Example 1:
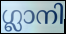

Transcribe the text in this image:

ഗ്ലാനി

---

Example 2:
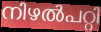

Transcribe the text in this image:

നിഴൽപറ്റി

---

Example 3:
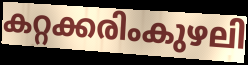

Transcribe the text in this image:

കറ്റക്കരിംകുഴലി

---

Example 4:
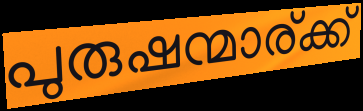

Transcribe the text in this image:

പുരുഷന്മാര്ക്ക്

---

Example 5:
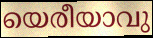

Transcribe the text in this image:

യെരീയാവു